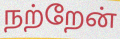
நற்றேன்